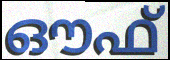
ഔഫ്